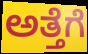
ಅತ್ತೆಗೆ